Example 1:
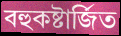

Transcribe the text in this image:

বহুকষ্টার্জিত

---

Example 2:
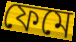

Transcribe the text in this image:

ফেমে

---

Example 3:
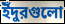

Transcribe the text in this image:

ইঁদুরগুলো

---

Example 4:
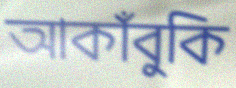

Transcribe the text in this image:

আকাঁবুকি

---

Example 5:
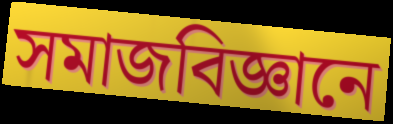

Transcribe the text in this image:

সমাজবিজ্ঞানে